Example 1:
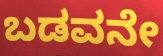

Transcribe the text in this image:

ಬಡವನೇ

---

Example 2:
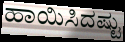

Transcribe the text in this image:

ಹಾಯಿಸಿದಷ್ಟು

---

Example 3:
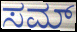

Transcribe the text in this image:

ಸಮ್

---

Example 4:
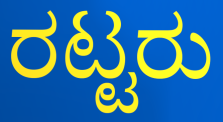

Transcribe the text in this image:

ರಟ್ಟರು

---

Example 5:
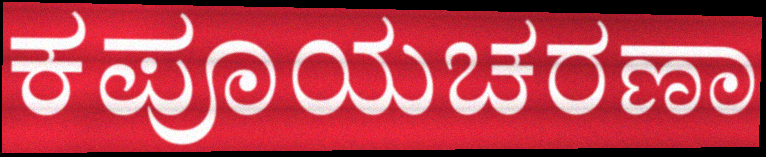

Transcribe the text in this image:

ಕಪೂಯಚರಣಾ